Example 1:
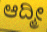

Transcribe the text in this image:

ಆದ್ಮೀ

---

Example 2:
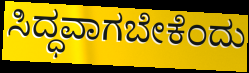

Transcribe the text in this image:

ಸಿದ್ಧವಾಗಬೇಕೆಂದು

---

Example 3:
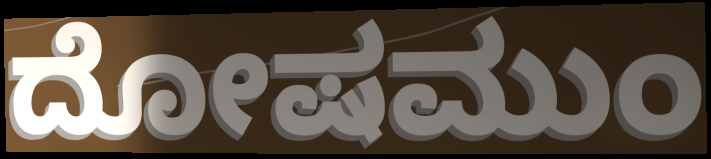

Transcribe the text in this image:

ದೋಷಮುಂ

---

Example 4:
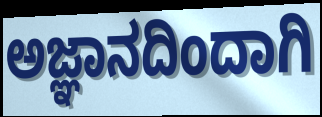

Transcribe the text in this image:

ಅಜ್ಞಾನದಿಂದಾಗಿ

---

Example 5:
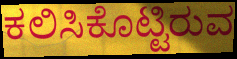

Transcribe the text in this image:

ಕಲಿಸಿಕೊಟ್ಟಿರುವ